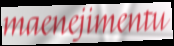
maenejimentu